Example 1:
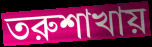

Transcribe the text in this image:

তরুশাখায়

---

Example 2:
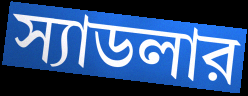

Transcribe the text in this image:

স্যাডলার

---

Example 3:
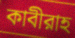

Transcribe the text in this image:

কাবীরাহ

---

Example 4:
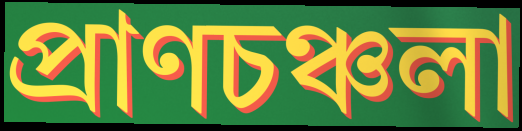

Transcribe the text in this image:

প্রাণচঞ্চলা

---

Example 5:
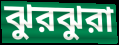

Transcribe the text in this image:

ঝুরঝুরা